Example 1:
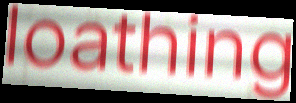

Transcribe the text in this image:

loathing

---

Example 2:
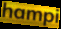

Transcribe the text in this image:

hampi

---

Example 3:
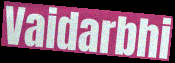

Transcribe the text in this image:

Vaidarbhi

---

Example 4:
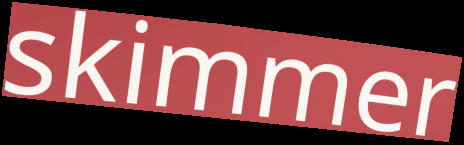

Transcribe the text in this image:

skimmer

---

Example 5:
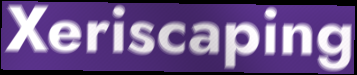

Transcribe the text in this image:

Xeriscaping